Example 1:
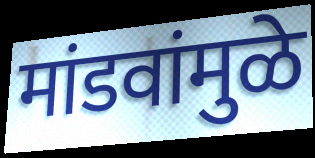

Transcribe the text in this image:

मांडवांमुळे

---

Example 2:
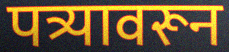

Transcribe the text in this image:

पत्र्यावरून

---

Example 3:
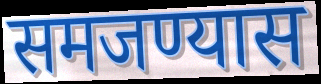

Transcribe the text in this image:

समजण्यास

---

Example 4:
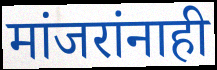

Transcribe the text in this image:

मांजरांनाही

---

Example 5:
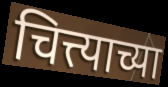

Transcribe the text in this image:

चित्त्याच्या